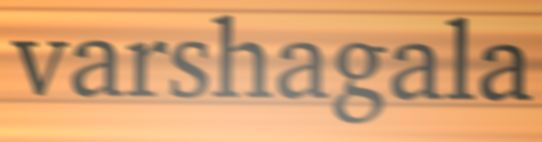
varshagala